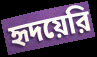
হৃদয়েরি